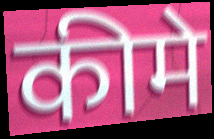
कीमे